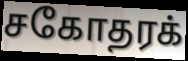
சகோதரக்